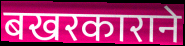
बखरकाराने